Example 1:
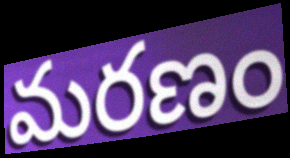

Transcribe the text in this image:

మరణం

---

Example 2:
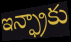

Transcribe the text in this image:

ఇన్ఫ్రాకు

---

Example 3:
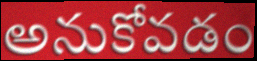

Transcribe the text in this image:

అనుకోవడం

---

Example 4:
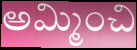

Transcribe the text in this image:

అమ్మించి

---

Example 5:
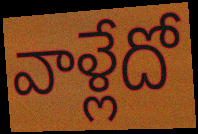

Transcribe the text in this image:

వాళ్లేదో